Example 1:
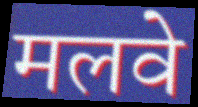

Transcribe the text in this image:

मलवे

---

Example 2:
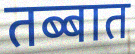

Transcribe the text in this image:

तब्बात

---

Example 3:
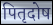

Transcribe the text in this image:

पितृदोष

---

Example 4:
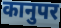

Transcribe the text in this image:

कानुपर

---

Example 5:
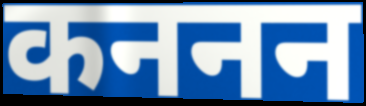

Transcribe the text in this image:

कननन